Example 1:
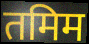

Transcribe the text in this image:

तमिम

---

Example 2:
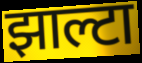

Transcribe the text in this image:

झाल्टा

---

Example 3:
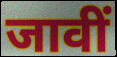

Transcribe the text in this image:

जावीं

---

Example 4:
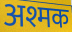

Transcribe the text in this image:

अश्मक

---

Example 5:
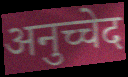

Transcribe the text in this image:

अनुच्चेद